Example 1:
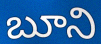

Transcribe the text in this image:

బూని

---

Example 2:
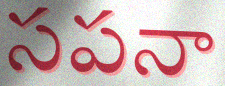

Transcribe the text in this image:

సపనా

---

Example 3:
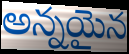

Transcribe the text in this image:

అన్నయైన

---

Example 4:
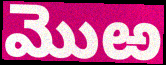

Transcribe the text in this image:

మొఱ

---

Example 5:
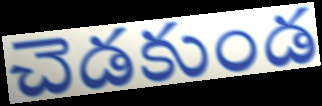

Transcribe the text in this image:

చెడకుండ